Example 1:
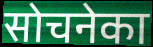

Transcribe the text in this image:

सोचनेका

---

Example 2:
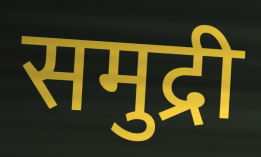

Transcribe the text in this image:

समुद्री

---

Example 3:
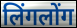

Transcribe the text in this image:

लिंगलोंग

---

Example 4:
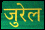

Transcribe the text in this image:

जुरेल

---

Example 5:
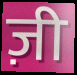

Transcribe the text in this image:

ज़ी